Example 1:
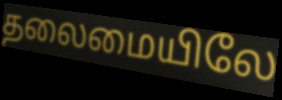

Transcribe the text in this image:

தலைமையிலே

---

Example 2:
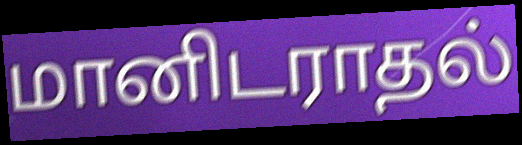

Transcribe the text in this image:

மானிடராதல்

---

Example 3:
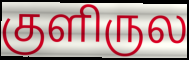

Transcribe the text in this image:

குளிருல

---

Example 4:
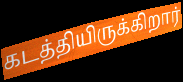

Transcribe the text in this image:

கடத்தியிருக்கிறார்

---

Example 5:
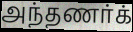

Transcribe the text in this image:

அந்தணர்க்